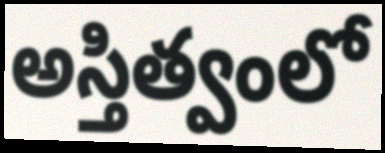
అస్తిత్వంలో